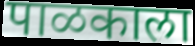
पाळकाला